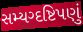
સમ્યગ્દષ્ટિપણું